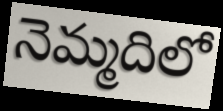
నెమ్మదిలో